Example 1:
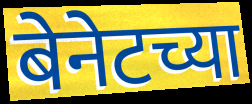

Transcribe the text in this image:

बेनेटच्या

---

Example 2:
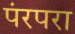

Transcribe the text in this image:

पंरपरा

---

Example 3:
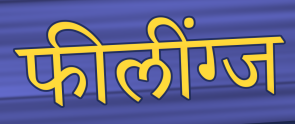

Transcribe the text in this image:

फीलींग्ज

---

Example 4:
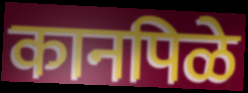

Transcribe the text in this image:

कानपिळे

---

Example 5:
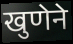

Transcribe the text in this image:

खुणेने